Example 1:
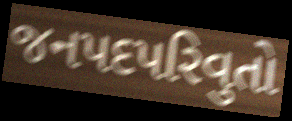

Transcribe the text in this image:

જનપદપરિવુતો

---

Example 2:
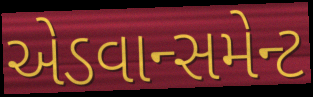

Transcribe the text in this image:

એડવાન્સમેન્ટ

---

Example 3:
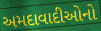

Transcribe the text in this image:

અમદાવાદીઓનો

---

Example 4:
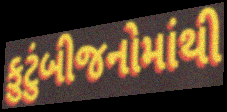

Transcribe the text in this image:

કુટુંબીજનોમાંથી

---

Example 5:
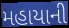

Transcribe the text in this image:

મહાયાની